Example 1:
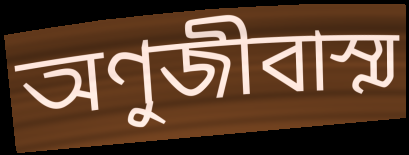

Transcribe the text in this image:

অণুজীবাস্ম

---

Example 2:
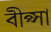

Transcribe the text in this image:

বীপ্সা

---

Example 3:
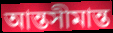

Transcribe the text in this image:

আন্তসীমান্ত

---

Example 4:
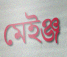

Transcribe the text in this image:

মেইঞ্জ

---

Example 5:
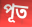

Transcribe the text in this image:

পূত